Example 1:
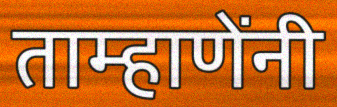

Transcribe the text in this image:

ताम्हाणेंनी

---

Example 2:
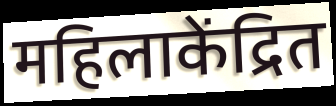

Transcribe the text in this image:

महिलाकेंद्रित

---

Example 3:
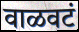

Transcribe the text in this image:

वाळवटं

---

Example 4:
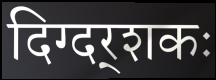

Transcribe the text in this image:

दिग्दर्शकः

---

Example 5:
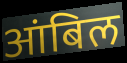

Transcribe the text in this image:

आंबिल